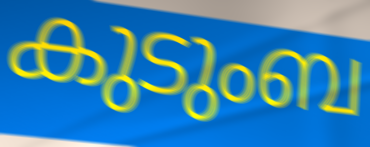
കുടുംബ